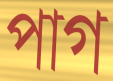
পাগ